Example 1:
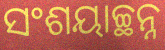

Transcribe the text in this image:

ସଂଶୟାଚ୍ଛନ୍ନ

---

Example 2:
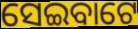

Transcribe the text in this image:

ସେଇବାଟେ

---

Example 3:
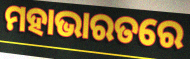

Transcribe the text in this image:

ମହାଭାରତରେ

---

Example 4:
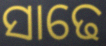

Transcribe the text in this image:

ସାଢେ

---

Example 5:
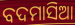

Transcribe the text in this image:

ବଦମାସିଆ